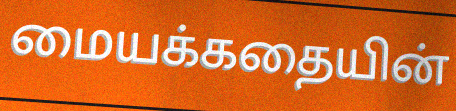
மையக்கதையின்